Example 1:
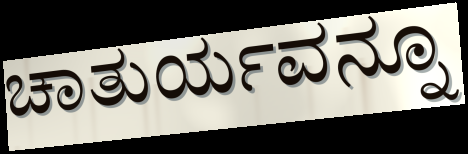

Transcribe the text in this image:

ಚಾತುರ್ಯವನ್ನೂ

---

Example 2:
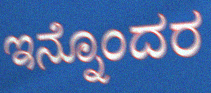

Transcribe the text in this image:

ಇನ್ನೊಂದರ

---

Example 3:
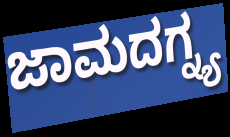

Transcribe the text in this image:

ಜಾಮದಗ್ನ್ಯ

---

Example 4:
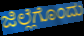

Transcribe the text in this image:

ಜಿಲ್ಲೆಗೊಂದು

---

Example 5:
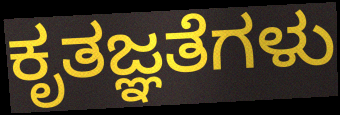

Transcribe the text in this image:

ಕೃತಜ್ಞತೆಗಳು